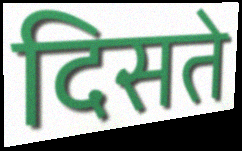
दिसते